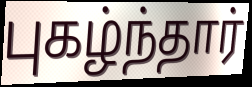
புகழ்ந்தார்